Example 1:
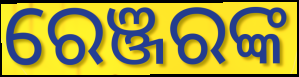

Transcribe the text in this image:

ରେଞ୍ଜରଙ୍କ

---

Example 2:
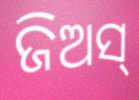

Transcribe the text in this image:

ଜିଅସ୍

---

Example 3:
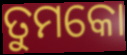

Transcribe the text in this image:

ତୁମକୋ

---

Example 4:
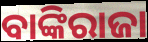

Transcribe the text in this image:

ବାଙ୍କିରାଜା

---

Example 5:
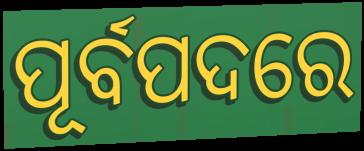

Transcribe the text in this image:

ପୂର୍ବପଦରେ